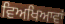
ਵਿਅਖਿਆਵਾਂ